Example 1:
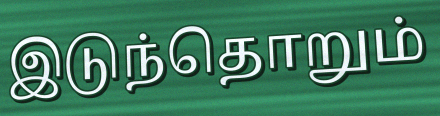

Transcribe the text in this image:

இடுந்தொறும்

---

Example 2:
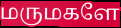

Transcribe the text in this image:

மருமகளே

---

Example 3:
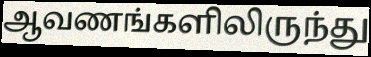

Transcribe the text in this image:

ஆவணங்களிலிருந்து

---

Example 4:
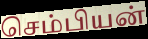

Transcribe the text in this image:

செம்பியன்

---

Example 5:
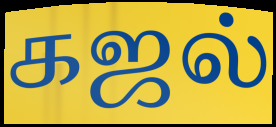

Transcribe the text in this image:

கஜல்